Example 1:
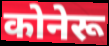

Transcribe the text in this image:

कोनेरू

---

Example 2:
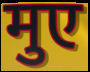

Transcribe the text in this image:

मुए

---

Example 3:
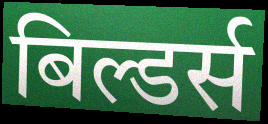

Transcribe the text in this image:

बिल्डर्स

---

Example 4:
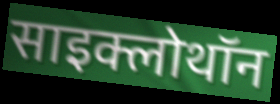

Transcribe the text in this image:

साइक्लोथॉन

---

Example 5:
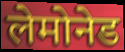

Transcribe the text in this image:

लेमोनेड